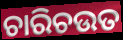
ଚାରିଚଉତ